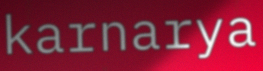
karnarya